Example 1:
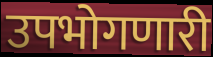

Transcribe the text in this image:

उपभोगणारी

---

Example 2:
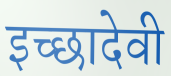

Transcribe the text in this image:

इच्छादेवी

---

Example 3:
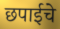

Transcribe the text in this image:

छपाईचे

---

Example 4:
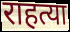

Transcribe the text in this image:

राहत्या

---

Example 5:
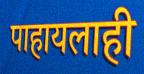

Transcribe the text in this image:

पाहायलाही